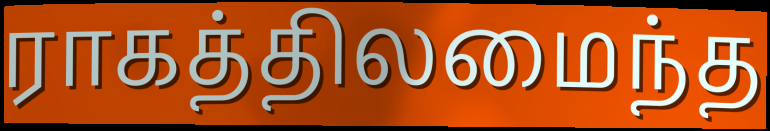
ராகத்திலமைந்த